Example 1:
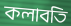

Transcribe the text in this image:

কলাবতি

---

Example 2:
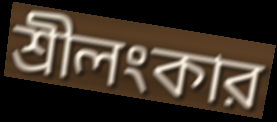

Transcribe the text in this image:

শ্রীলংকার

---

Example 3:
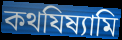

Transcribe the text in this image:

কথযিষ্যামি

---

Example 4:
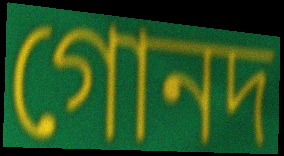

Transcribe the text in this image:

গোনদ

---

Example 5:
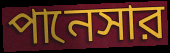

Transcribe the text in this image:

পানেসার